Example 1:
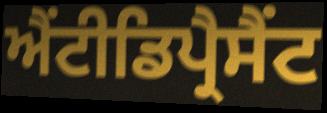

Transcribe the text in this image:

ਐਂਟੀਡਿਪ੍ਰੈਸੈਂਟ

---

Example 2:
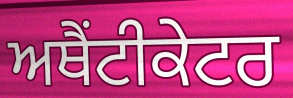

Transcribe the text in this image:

ਅਥੈਂਟੀਕੇਟਰ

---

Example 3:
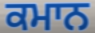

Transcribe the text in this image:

ਕਮਾਨ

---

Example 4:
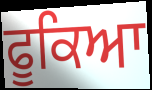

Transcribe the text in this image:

ਫੂਕਿਆ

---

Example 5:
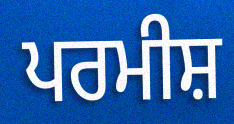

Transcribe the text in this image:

ਪਰਮੀਸ਼